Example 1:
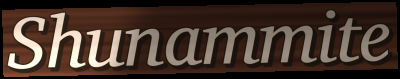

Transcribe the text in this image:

Shunammite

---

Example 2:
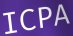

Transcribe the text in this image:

ICPA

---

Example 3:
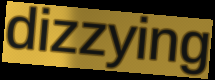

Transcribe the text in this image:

dizzying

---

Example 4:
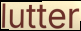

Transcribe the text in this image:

lutter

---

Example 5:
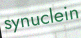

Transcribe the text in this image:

synuclein